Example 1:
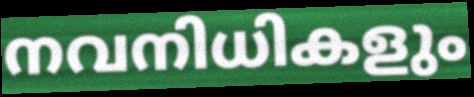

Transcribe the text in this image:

നവനിധികളും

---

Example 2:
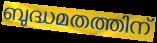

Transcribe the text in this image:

ബുദ്ധമതത്തിന്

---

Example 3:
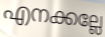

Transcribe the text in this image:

എനക്കല്ലേ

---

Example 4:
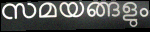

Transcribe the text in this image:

സമയങ്ങളും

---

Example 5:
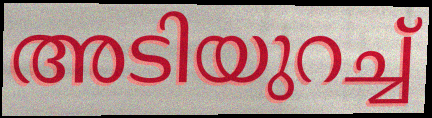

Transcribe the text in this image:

അടിയുറച്ച്